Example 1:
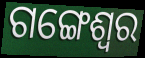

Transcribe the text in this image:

ଗଙ୍ଗେଶ୍ଵର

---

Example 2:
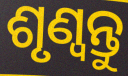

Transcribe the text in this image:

ଶୃଣ୍ଵନ୍ତୁ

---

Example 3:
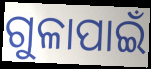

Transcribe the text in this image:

ଗୁଳାପାଇଁ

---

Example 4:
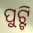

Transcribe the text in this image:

ପୁଟ୍ଟି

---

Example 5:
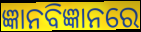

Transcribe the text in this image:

ଜ୍ଞାନବିଜ୍ଞାନରେ